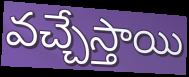
వచ్చేస్తాయి